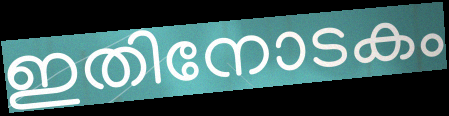
ഇതിനോടകം